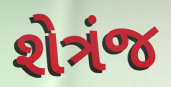
શેત્રંજ